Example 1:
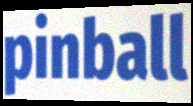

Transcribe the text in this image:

pinball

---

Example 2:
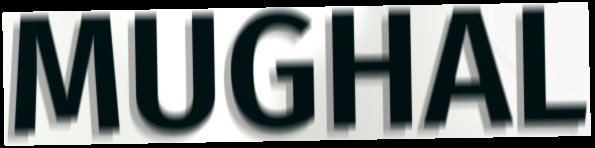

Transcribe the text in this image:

MUGHAL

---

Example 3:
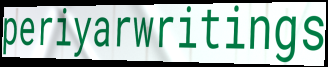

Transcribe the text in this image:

periyarwritings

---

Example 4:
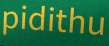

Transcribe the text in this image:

pidithu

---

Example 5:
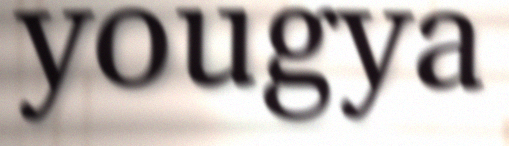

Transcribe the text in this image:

yougya